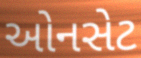
ઓનસેટ